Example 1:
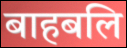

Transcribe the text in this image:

बाहबलि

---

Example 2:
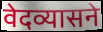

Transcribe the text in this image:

वेदव्यासने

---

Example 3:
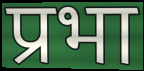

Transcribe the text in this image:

प्रभा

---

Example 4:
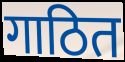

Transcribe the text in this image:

गाठित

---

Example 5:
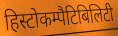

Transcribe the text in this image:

हिस्टोकम्पैटिबिलिटी